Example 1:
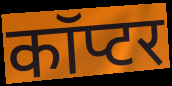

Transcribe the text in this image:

कॉप्टर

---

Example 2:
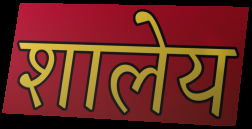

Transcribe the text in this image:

शालेय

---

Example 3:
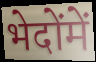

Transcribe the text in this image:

भेदोंमें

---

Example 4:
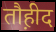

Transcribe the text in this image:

तौह़ीद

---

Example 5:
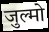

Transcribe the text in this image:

जुल्मो